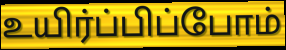
உயிர்ப்பிப்போம்